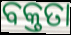
ବକ୍ତତା